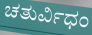
ಚತುರ್ವಿಧಂ